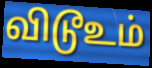
விடூஉம்